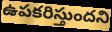
ఉపకరిస్తుందని